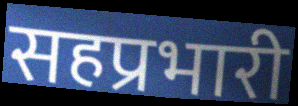
सहप्रभारी